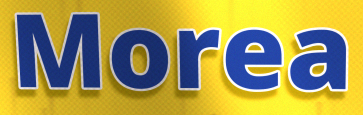
Morea